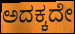
ಅದಕ್ಕದೇ